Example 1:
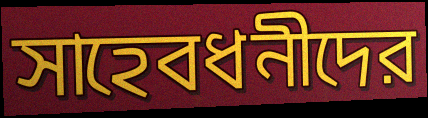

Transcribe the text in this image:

সাহেবধনীদের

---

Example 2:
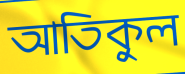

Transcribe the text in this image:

আতিকুল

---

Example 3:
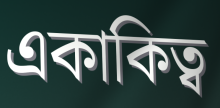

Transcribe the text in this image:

একাকিত্ব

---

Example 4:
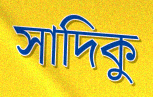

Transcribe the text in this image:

সাদিকু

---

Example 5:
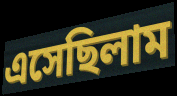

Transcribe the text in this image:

এসেছিলাম